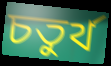
চতুৰ্থ